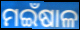
ମଇଁଷାଳ